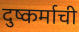
दुष्कर्माची